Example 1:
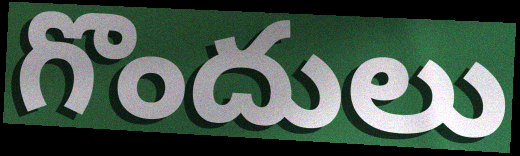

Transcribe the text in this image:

గొందులు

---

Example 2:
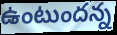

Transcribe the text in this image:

ఉంటుందన్న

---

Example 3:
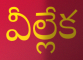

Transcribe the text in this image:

వీల్లేక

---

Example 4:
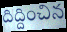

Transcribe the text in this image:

దిద్దించిన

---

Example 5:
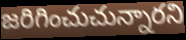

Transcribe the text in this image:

జరిగించుచున్నారని